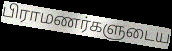
பிராமணர்களுடைய